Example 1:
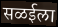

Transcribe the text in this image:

सळईला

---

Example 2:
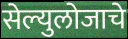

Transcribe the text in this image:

सेल्युलोजाचे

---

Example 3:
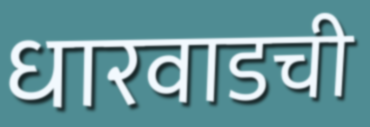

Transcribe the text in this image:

धारवाडची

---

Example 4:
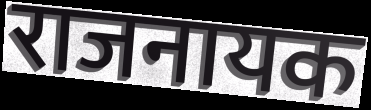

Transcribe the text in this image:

राजनायक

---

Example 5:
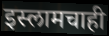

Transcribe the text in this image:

इस्लामचाही